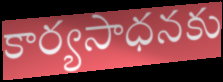
కార్యసాధనకు